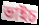
ভাইচ